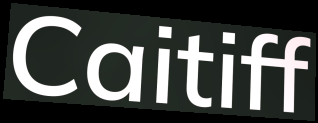
Caitiff